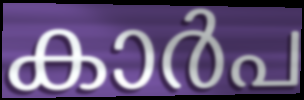
കാർപ